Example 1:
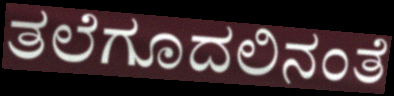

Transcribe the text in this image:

ತಲೆಗೂದಲಿನಂತೆ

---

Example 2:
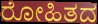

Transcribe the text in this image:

ರೋಹಿತದ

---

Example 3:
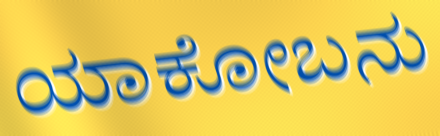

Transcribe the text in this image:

ಯಾಕೋಬನು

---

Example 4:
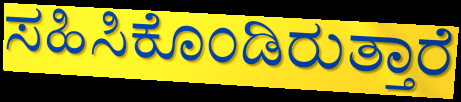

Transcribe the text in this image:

ಸಹಿಸಿಕೊಂಡಿರುತ್ತಾರೆ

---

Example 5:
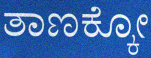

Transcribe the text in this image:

ತಾಣಕ್ಕೋ